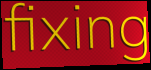
fixing